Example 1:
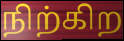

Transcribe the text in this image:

நிற்கிற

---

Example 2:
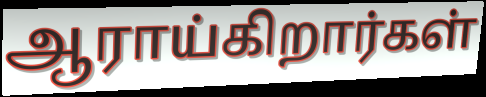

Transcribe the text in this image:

ஆராய்கிறார்கள்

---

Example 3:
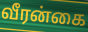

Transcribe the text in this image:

வீரன்கை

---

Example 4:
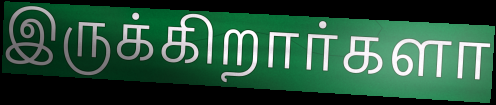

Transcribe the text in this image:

இருக்கிறார்களா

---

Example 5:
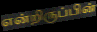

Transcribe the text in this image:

என்றிருப்பின்